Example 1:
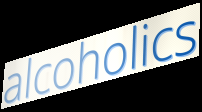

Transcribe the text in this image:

alcoholics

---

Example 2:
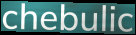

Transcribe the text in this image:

chebulic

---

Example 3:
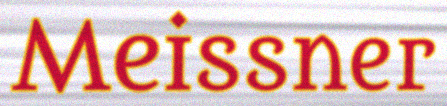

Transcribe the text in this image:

Meissner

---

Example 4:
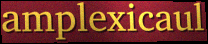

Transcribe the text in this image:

amplexicaul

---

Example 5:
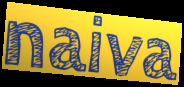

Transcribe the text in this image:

naiva